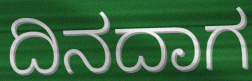
ದಿನದಾಗ